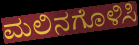
ಮಲಿನಗೊಳಿಸಿ